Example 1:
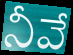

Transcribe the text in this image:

నీవే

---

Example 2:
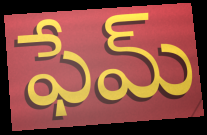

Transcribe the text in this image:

ఫేమ్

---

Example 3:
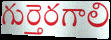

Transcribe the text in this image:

గుర్తెరగాలి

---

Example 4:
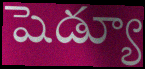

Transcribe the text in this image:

షెడ్యూ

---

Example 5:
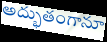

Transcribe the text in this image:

అద్భుతంగానూ